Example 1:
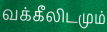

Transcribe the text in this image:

வக்கீலிடமும்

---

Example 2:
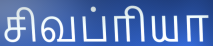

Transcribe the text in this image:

சிவப்ரியா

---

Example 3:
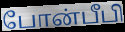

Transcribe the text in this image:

போன்பீபி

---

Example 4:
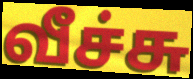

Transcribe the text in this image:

வீச்சு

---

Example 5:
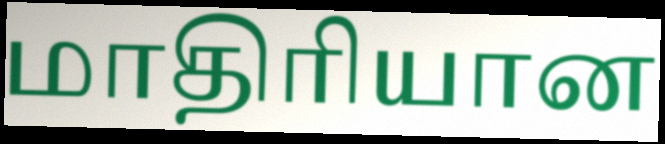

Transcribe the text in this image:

மாதிரியான